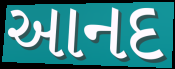
આનદ